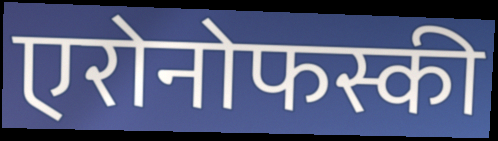
एरोनोफस्की